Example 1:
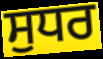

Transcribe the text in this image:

ਸੁਧਰ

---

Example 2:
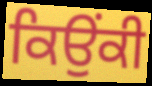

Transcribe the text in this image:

ਕਿਉਂਕੀ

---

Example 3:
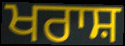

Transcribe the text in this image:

ਖਰਾਸ਼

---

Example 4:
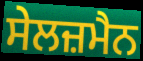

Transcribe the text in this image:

ਸੇਲਜ਼ਮੈਨ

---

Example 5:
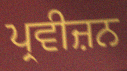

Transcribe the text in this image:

ਪ੍ਰਵੀਜ਼ਨ